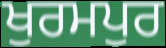
ਖੁਰਮਪੁਰ